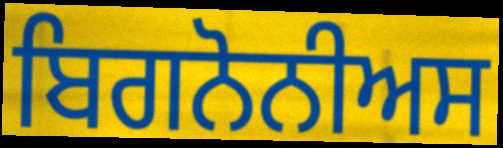
ਬਿਗਨੋਨੀਅਸ